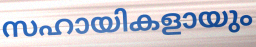
സഹായികളായും